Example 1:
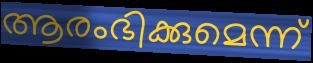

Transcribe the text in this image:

ആരംഭിക്കുമെന്ന്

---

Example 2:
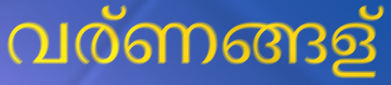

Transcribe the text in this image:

വര്ണങ്ങള്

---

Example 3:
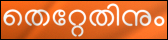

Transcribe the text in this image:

തെറ്റേതിനും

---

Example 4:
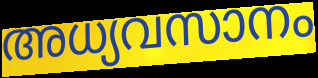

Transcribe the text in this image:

അധ്യവസാനം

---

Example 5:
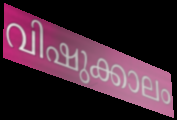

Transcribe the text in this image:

വിഷുക്കാലം